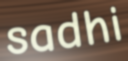
sadhi